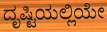
ದೃಷ್ಟಿಯಲ್ಲಿಯೇ